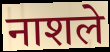
नाशले